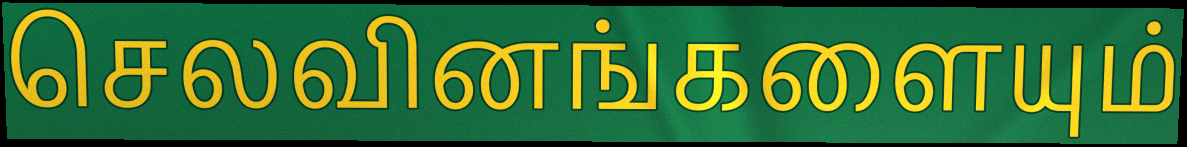
செலவினங்களையும்